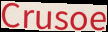
Crusoe